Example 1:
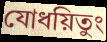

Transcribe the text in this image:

যোধয়িতুং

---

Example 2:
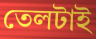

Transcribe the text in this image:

তেলটাই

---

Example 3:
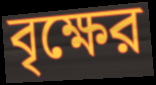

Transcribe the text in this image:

বৃক্ষের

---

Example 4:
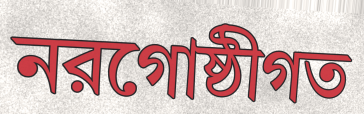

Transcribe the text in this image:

নরগোষ্ঠীগত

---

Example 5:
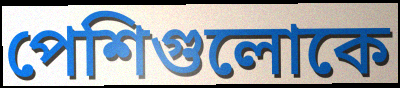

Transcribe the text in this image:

পেশিগুলোকে